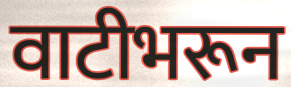
वाटीभरून